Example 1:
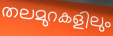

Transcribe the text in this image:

തലമുറകളിലും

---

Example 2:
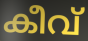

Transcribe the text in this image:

കീവ്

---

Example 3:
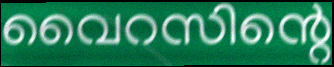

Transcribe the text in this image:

വൈറസിന്റെ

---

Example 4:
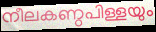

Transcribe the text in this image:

നീലകണ്ഠപിള്ളയും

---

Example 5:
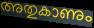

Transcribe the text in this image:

അതുകാണും